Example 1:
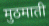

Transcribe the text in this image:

मुठमाती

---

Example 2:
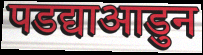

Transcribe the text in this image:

पडद्याआडुन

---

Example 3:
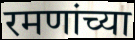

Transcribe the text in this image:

रमणांच्या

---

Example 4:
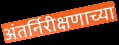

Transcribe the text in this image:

अंतर्निरीक्षणाच्या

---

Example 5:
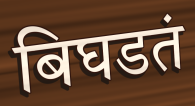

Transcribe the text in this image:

बिघडतं